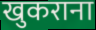
खुकराना